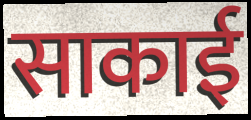
साकाई